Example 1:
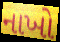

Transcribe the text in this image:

નાખો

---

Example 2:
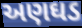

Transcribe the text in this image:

અણઘડ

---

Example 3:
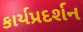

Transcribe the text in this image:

કાર્યપ્રદર્શન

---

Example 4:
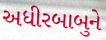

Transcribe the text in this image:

અધીરબાબુને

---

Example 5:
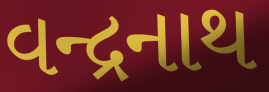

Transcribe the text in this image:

વન્દ્રનાથ